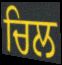
ਚਿਲ